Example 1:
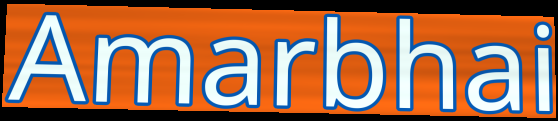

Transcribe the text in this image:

Amarbhai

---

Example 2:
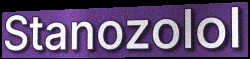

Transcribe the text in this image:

Stanozolol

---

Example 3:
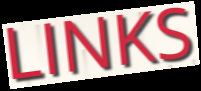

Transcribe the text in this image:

LINKS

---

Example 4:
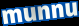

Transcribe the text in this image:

munnu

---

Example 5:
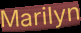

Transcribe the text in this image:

Marilyn